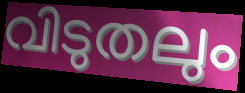
വിടുതലും